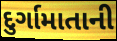
દુર્ગામાતાની